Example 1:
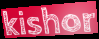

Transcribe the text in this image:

kishor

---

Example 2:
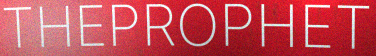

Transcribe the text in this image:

THEPROPHET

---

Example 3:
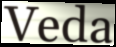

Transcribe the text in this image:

Veda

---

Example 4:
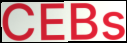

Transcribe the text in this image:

CEBs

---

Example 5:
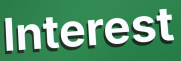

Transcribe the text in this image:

Interest